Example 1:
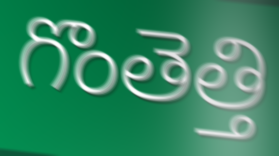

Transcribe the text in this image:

గొంతెత్తి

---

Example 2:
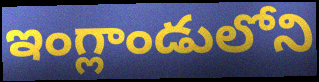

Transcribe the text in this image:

ఇంగ్లాండులోని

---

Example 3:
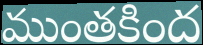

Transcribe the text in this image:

ముంతకింద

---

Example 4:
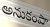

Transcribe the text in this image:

అనుకంపా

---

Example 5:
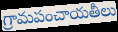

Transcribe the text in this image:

గ్రామపంచాయతీలు